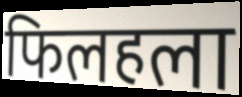
फिलहला